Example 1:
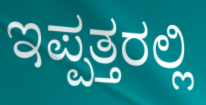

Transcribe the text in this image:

ಇಪ್ಪತ್ತರಲ್ಲಿ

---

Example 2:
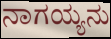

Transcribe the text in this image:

ನಾಗಯ್ಯನು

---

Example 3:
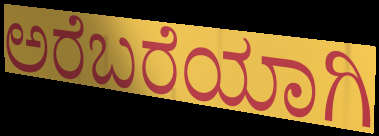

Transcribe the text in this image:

ಅರೆಬರೆಯಾಗಿ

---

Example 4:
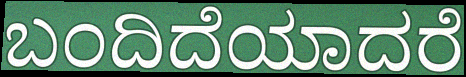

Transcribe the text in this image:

ಬಂದಿದೆಯಾದರೆ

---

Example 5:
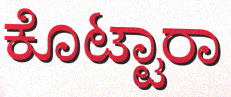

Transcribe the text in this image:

ಕೊಟ್ಟಾರಾ